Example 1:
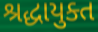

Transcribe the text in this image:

શ્રદ્ધાયુક્ત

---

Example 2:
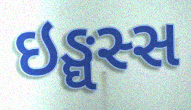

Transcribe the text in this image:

ઇઙ્ઘસ્સ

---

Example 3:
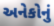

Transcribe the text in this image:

અનેકોનું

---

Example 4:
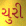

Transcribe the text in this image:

ચુરી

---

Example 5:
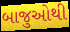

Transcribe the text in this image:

બાજુઓથી